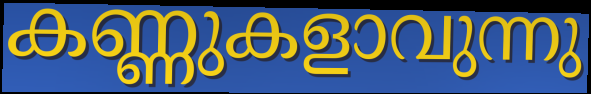
കണ്ണുകളാവുന്നു